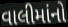
વાલીમાંનો